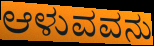
ಆಳುವವನು